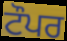
ਟੌਪਰ